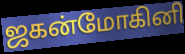
ஜகன்மோகினி